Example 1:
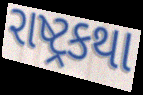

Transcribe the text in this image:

રાષ્ટ્રકથા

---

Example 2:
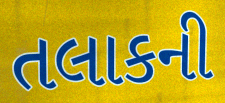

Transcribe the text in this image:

તલાકની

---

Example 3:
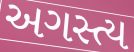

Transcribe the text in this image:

અગસ્ત્ય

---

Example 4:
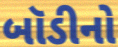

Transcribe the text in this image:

બૉડીનો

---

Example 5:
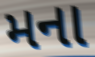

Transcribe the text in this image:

મના